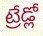
ట్రేడ్లో